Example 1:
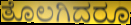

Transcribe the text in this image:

ತೊಲಗಿದರೂ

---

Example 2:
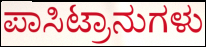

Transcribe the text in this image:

ಪಾಸಿಟ್ರಾನುಗಳು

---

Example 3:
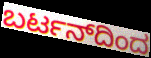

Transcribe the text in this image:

ಬರ್ಟನ್‌ದಿಂದ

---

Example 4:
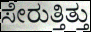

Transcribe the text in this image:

ಸೇರುತ್ತಿತ್ತು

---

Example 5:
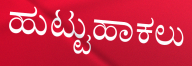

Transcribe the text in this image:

ಹುಟ್ಟುಹಾಕಲು